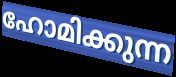
ഹോമിക്കുന്ന